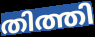
തിത്തി